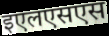
इएलएसएस